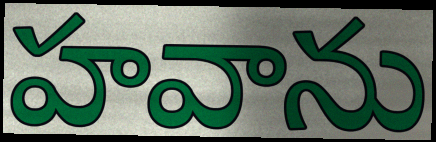
హవాను